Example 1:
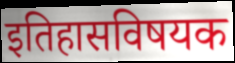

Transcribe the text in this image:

इतिहासविषयक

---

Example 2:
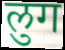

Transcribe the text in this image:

लुग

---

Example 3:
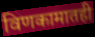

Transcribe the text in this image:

विणकामातही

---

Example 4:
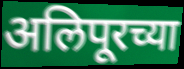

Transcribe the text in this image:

अलिपूरच्या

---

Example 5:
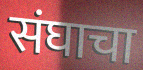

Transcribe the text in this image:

संघाचा